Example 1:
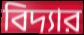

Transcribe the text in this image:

বিদ্যার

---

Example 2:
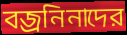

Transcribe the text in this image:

বজ্রনিনাদের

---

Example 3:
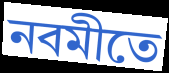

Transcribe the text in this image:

নবমীতে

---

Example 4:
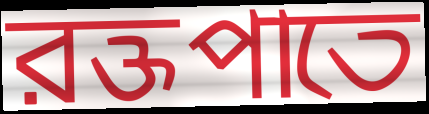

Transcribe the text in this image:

রক্তপাতে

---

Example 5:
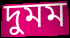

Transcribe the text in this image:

দুমম